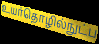
உயர்தொழில்நுட்ப